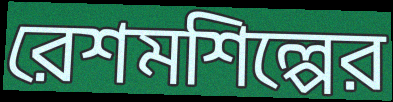
রেশমশিল্পের